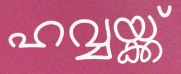
ഹവ്വയ്ക്ക്